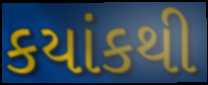
કયાંકથી